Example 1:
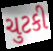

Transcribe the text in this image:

ચુટકી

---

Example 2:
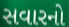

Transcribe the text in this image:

સવારનો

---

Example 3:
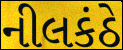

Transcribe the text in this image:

નીલકંઠે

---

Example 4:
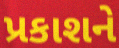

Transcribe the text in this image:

પ્રકાશને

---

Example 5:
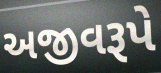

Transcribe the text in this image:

અજીવરૂપે